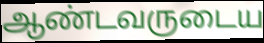
ஆண்டவருடைய